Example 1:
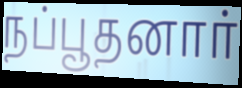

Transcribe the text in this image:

நப்பூதனார்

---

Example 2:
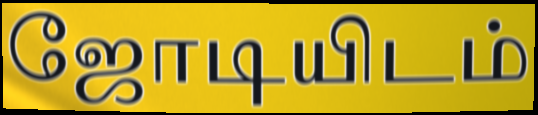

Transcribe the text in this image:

ஜோடியிடம்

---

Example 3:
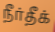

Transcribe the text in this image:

நீர்தீக்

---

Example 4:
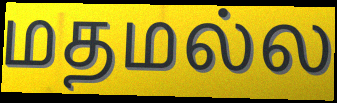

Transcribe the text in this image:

மதமல்ல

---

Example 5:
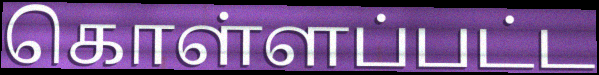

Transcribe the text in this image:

கொள்ளப்பட்ட